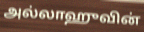
அல்லாஹுவின்